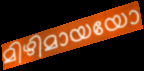
മിഴിമായയോ